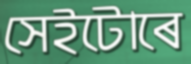
সেইটোৰে